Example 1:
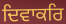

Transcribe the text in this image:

ਦਿਵਾਕਰਿ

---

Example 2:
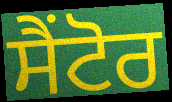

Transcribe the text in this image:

ਸੈਂਟੋਰ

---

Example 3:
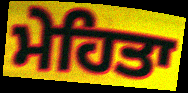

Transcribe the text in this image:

ਮੇਹਿਤਾ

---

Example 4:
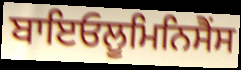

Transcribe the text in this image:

ਬਾਇਓਲੂਮਿਨਿਸੈਂਸ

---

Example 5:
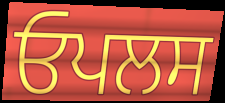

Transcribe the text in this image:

ਓਪਲਸ